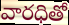
వారధితో